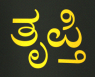
ತೃಪ್ತಿ